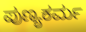
ಪುಣ್ಯಕರ್ಮ